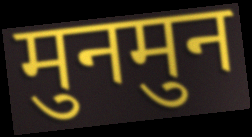
मुनमुन